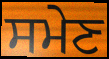
ਸਮੇਣ